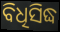
ବିଧିସିଦ୍ଧ